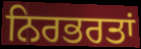
ਨਿਰਭਰਤਾਂ